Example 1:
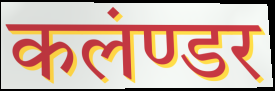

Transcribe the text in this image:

कलंण्डर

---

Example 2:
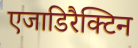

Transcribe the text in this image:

एजाडिरैक्टिन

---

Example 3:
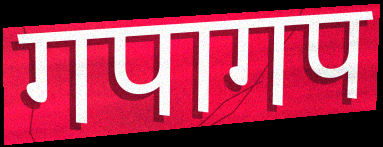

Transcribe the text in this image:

गपागप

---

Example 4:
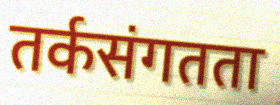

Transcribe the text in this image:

तर्कसंगतता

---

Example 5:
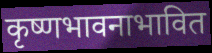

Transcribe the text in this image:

कृष्णभावनाभावित